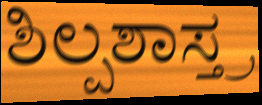
ಶಿಲ್ಪಶಾಸ್ತ್ರ